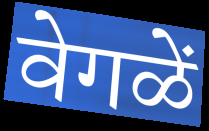
वेगळें